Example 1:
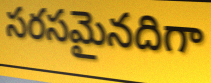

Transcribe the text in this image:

సరసమైనదిగా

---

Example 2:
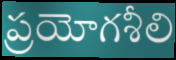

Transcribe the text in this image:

ప్రయోగశీలి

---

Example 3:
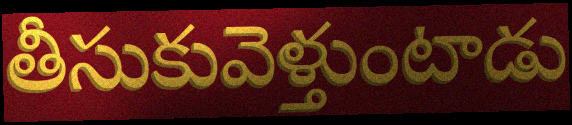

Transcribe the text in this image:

తీసుకువెళ్తుంటాడు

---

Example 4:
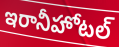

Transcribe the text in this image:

ఇరానీహోటల్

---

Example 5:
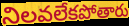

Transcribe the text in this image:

నిలవలేకపోతారు